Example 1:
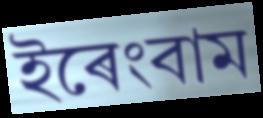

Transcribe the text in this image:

ইৰেংবাম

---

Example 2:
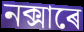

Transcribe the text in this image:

নক্সাৰে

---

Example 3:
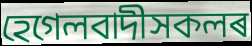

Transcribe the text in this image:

হেগেলবাদীসকলৰ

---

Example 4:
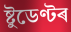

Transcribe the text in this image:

ষ্টুডেণ্টৰ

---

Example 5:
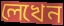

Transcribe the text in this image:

লেখেন